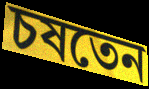
চষতেন